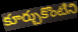
కూర్చుకొంటిని